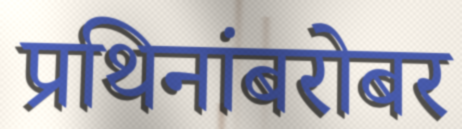
प्रथिनांबरोबर